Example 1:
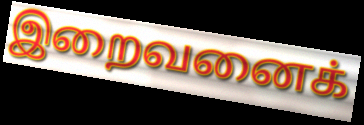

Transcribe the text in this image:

இறைவனைக்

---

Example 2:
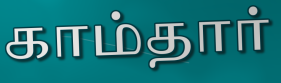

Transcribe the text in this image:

காம்தார்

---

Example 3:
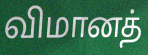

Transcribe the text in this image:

விமானத்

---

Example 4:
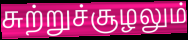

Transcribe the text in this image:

சுற்றுச்சூழலும்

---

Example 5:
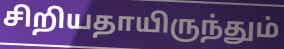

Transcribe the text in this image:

சிறியதாயிருந்தும்